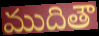
ముదితౌ